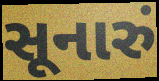
સૂનારું